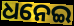
ଧନେଇ